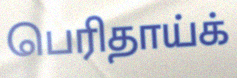
பெரிதாய்க்